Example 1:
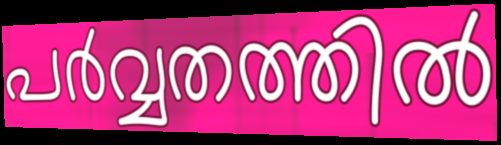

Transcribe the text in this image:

പർവ്വതത്തിൽ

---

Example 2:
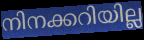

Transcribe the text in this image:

നിനക്കറിയില്ല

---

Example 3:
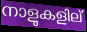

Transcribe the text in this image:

നാളുകളില്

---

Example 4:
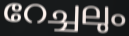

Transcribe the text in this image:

റേച്ചലും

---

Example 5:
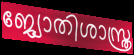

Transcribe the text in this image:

ജ്യോതിശാസ്ത്ര